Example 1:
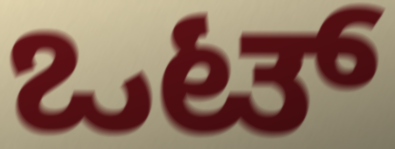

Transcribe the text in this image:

ಒಟ್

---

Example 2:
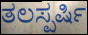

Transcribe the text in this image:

ತಲಸ್ಪರ್ಷಿ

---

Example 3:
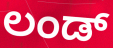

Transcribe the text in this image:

ಲಂಡ್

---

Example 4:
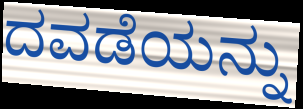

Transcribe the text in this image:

ದವಡೆಯನ್ನು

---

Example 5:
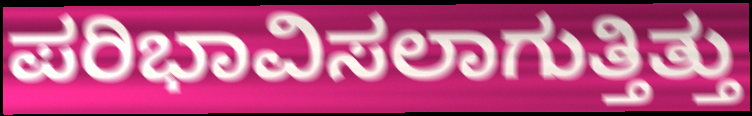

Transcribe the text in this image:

ಪರಿಭಾವಿಸಲಾಗುತ್ತಿತ್ತು